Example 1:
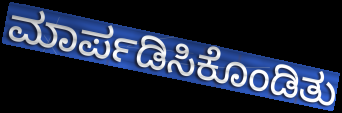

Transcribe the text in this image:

ಮಾರ್ಪಡಿಸಿಕೊಂಡಿತು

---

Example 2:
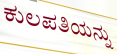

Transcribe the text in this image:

ಕುಲಪತಿಯನ್ನು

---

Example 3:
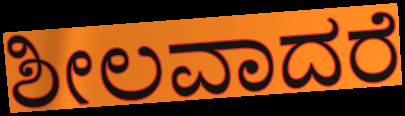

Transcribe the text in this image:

ಶೀಲವಾದರೆ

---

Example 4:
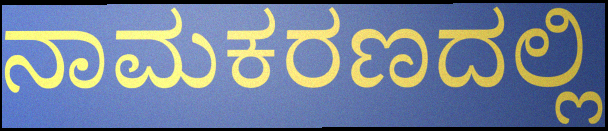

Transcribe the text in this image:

ನಾಮಕರಣದಲ್ಲಿ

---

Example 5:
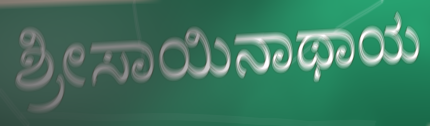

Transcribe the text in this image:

ಶ್ರೀಸಾಯಿನಾಥಾಯ